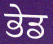
ਭੇਡ